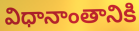
విధానాంతానికి